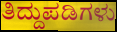
ತಿದ್ದುಪಡಿಗಳು